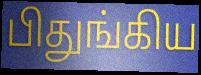
பிதுங்கிய